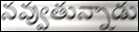
నవ్వుతున్నాడు